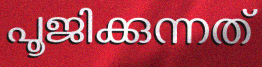
പൂജിക്കുന്നത്